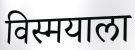
विस्मयाला